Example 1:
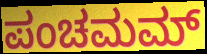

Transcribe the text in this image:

ಪಂಚಮಮ್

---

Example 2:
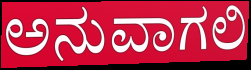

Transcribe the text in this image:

ಅನುವಾಗಲಿ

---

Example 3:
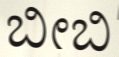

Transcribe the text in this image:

ಬೀಬಿ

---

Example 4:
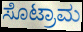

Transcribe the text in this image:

ಸೊಟ್ರಾಮ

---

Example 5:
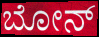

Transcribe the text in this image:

ಬೋನ್